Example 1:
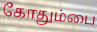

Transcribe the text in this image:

கோதும்பை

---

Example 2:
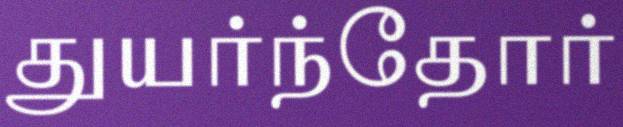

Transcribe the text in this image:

துயர்ந்தோர்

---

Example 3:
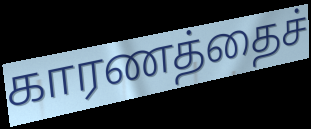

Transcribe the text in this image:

காரணத்தைச்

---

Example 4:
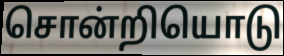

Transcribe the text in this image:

சொன்றியொடு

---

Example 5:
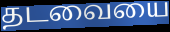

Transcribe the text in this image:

தடவையை